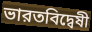
ভারতবিদ্বেষী